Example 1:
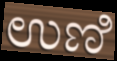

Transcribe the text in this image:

ಉಣಿ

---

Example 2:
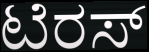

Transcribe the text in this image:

ಟೆರಸ್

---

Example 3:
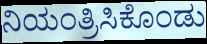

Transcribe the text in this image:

ನಿಯಂತ್ರಿಸಿಕೊಂಡು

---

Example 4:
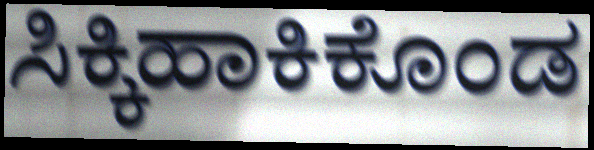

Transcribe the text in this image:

ಸಿಕ್ಕಿಹಾಕಿಕೊಂಡ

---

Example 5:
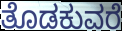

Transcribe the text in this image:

ತೊಡಕುವರೆ